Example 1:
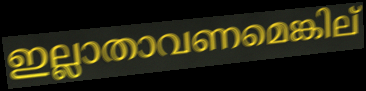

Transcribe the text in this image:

ഇല്ലാതാവണമെങ്കില്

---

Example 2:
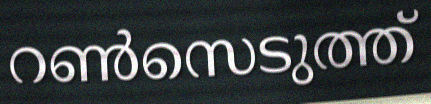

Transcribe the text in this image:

റൺസെടുത്ത്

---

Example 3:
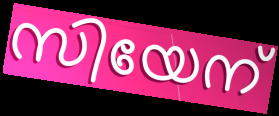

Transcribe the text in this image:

സിയേന്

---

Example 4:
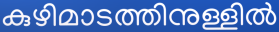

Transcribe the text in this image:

കുഴിമാടത്തിനുള്ളിൽ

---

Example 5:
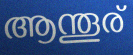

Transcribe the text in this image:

ആന്തൂര്